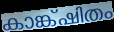
കാങ്ക്ഷിതം